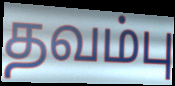
தவம்பு